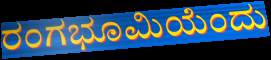
ರಂಗಭೂಮಿಯೆಂದು